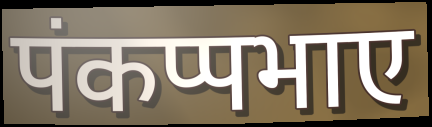
पंकप्पभाए